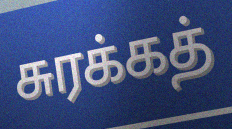
சுரக்கத்